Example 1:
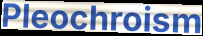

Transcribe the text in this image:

Pleochroism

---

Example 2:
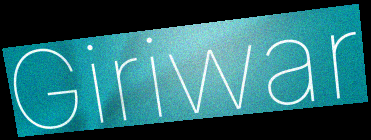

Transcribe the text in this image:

Giriwar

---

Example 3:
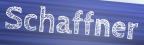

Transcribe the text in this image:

Schaffner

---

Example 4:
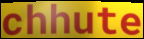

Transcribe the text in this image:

chhute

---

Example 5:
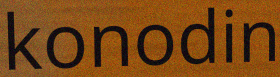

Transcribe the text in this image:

konodin